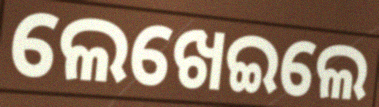
ଲେଖେଇଲେ